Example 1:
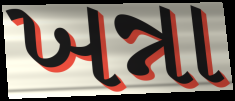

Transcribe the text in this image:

ખન્ના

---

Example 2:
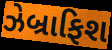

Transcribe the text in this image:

ઝેબ્રાફિશ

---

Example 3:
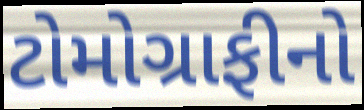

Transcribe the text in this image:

ટોમોગ્રાફીનો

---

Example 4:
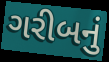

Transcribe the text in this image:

ગરીબનું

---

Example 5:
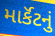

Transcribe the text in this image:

માર્કૅટનું